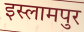
इस्लामपुर